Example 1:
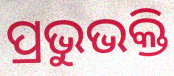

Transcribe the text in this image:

ପ୍ରଭୁଭକ୍ତି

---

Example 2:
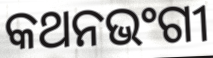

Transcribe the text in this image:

କଥନଭଂଗୀ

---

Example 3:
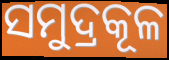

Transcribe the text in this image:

ସମୁଦ୍ରକୂଳ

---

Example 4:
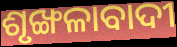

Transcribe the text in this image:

ଶୃଙ୍ଖଳାବାଦୀ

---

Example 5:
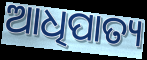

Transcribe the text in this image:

ଆଧିପାତ୍ୟ